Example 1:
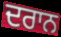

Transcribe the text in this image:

ਦਰਾਨ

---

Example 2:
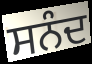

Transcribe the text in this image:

ਸਨੰਦ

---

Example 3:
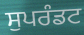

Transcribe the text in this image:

ਸੁਪਰੰਡਟ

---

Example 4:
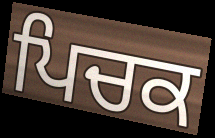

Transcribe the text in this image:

ਪਿਚਕ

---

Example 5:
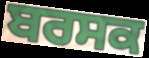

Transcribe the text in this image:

ਬਰਸਕ